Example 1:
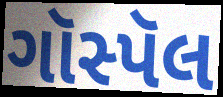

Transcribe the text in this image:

ગૉસ્પૅલ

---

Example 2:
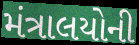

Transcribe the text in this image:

મંત્રાલયોની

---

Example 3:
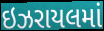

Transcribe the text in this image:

ઇઝરાયલમાં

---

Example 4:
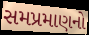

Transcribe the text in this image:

સમપ્રમાણનો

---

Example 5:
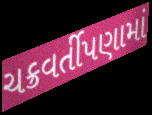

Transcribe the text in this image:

ચક્રવર્તીપણામાં